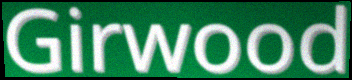
Girwood